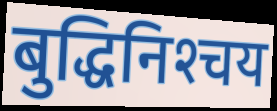
बुद्धिनिश्चय